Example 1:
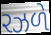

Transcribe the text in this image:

રઝળે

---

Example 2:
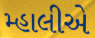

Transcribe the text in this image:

મ્હાલીએ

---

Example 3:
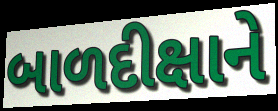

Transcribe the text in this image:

બાળદીક્ષાને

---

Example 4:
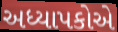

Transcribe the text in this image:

અધ્યાપકોએ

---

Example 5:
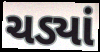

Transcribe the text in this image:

ચડ્યાં